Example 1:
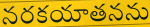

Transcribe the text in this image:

నరకయాతనను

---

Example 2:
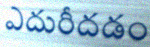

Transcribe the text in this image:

ఎదురీదడం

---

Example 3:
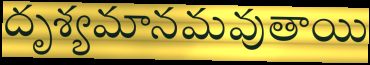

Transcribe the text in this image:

దృశ్యమానమవుతాయి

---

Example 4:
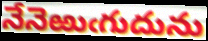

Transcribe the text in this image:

నేనెఱుఁగుదును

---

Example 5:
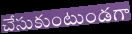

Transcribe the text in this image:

చేసుకుంటుండగా